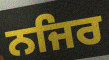
ਨਜਿਰ